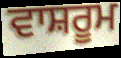
ਵਾਸ਼ਰੂਮ